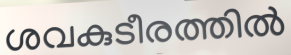
ശവകുടീരത്തിൽ